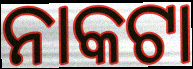
ନାକଟା